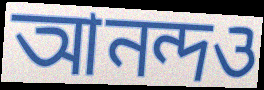
আনন্দও